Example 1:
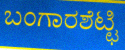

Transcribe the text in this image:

ಬಂಗಾರಶೆಟ್ಟಿ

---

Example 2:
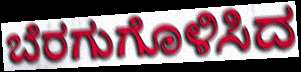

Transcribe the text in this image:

ಬೆರಗುಗೊಳಿಸಿದ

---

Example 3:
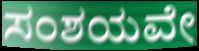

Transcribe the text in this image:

ಸಂಶಯವೇ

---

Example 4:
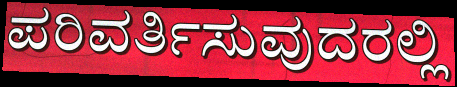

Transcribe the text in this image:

ಪರಿವರ್ತಿಸುವುದರಲ್ಲಿ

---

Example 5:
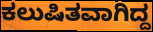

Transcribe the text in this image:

ಕಲುಷಿತವಾಗಿದ್ದ